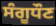
ਸੰਗੂਧੌਣ